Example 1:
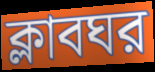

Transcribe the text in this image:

ক্লাবঘর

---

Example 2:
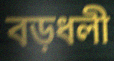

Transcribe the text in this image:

বড়ধলী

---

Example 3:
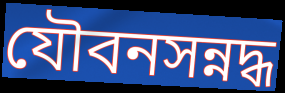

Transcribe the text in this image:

যৌবনসন্নদ্ধ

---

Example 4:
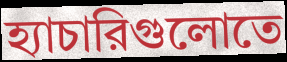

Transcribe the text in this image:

হ্যাচারিগুলোতে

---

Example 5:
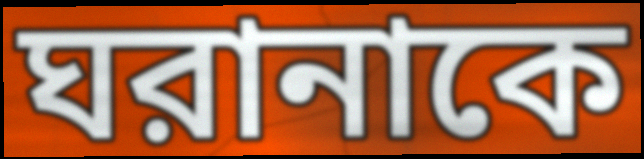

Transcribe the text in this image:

ঘরানাকে